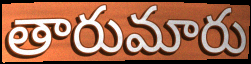
తారుమారు